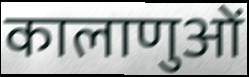
कालाणुओं